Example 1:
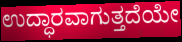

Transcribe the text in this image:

ಉದ್ಧಾರವಾಗುತ್ತದೆಯೇ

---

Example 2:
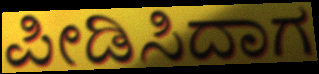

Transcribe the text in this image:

ಪೀಡಿಸಿದಾಗ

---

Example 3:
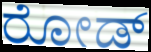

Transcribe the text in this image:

ರೋಡ್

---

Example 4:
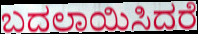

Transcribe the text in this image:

ಬದಲಾಯಿಸಿದರೆ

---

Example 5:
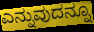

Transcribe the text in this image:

ಎನ್ನುವುದನ್ನೂ